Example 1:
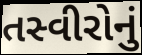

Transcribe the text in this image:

તસ્વીરોનું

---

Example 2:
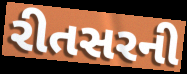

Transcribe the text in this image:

રીતસરની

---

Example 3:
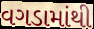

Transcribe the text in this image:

વગડામાંથી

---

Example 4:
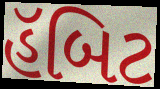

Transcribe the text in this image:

હૅબિટ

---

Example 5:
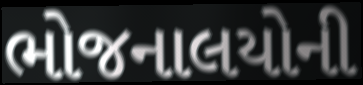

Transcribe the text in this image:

ભોજનાલયોની